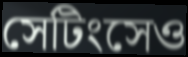
সেটিংসেও